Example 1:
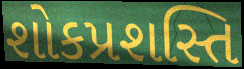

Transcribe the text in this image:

શોકપ્રશસ્તિ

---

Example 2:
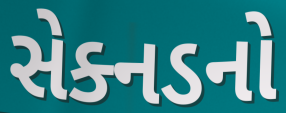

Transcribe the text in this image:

સેક્નડનો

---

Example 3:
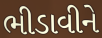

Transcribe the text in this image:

ભીડાવીને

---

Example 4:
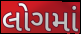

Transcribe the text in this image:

લોગમાં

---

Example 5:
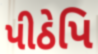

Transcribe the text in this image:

પીઠેપિ